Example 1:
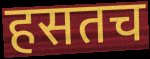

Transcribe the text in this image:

हसतच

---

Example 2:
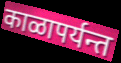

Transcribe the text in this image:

काळापर्यन्त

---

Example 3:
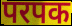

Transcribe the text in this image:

परपक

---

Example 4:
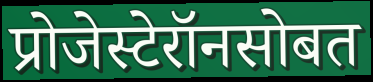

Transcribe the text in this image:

प्रोजेस्टेरॉनसोबत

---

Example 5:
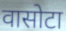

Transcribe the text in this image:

वासोटा